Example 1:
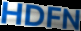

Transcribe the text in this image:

HDFN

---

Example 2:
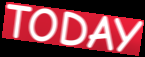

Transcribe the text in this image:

TODAY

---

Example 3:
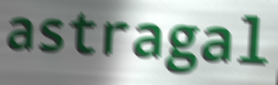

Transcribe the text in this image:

astragal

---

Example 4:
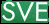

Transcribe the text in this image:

SVE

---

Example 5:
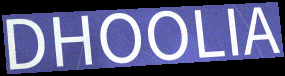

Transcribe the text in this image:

DHOOLIA